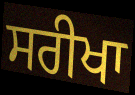
ਸਰੀਖਾ